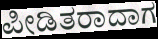
ಪೀಡಿತರಾದಾಗ